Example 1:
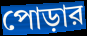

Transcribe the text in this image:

পোড়ার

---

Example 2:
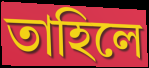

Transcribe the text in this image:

তাহিলে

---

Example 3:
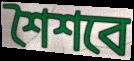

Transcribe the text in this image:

শৈশবে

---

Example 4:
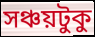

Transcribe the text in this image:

সঞ্চয়টুকু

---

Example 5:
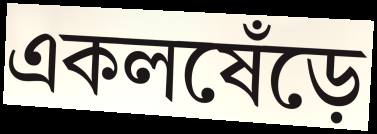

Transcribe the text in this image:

একলষেঁড়ে